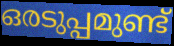
ഒരടുപ്പമുണ്ട്